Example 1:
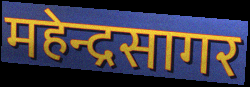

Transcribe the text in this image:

महेन्द्रसागर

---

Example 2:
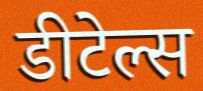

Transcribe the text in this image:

डीटेल्स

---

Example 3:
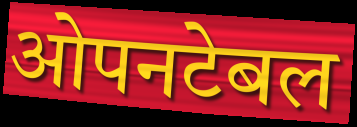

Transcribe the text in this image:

ओपनटेबल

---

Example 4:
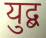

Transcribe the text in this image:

युद्ब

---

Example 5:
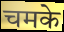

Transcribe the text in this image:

चमके